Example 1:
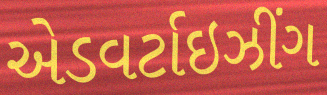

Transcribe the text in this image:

એડવર્ટાઇઝીંગ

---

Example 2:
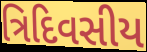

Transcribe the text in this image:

ત્રિદિવસીય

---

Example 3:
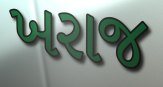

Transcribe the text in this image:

ખરાજ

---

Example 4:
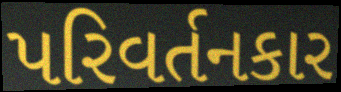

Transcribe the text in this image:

પરિવર્તનકાર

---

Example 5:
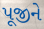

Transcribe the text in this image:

પૂજીને